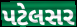
પટેલસર